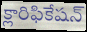
క్లారిఫికేషన్